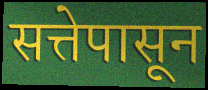
सत्तेपासून